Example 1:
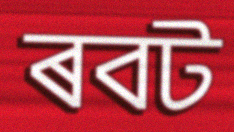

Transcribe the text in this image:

ৰবট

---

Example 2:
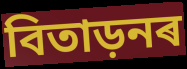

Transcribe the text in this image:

বিতাড়নৰ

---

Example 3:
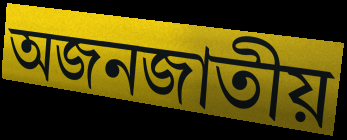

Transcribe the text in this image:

অজনজাতীয়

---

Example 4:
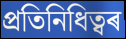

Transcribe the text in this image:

প্ৰতিনিধিত্বৰ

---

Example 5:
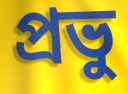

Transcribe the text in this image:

প্ৰভু